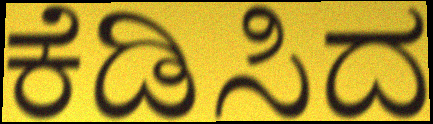
ಕೆಡಿಸಿದ